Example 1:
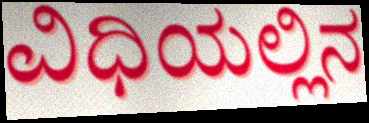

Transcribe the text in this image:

ವಿಧಿಯಲ್ಲಿನ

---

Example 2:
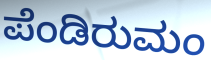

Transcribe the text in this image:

ಪೆಂಡಿರುಮಂ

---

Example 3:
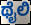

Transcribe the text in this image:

ಥೈಲಿ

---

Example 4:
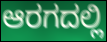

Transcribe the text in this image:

ಆರಗದಲ್ಲಿ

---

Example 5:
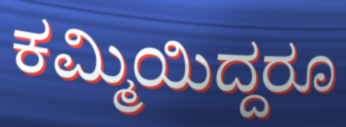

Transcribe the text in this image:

ಕಮ್ಮಿಯಿದ್ದರೂ